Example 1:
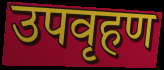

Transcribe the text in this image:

उपवृहण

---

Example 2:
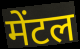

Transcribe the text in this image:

मेंटल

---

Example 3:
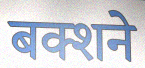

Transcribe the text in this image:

बक्शने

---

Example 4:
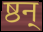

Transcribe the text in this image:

ष्ठन्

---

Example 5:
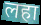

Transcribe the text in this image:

लहा